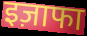
इज़ाफा